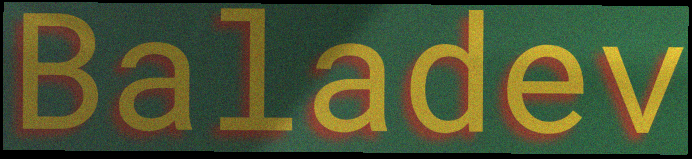
Baladev